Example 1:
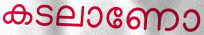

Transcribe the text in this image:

കടലാണോ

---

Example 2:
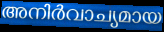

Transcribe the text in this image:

അനിർവാച്യമായ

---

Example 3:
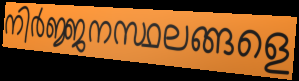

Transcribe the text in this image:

നിർജ്ജനസ്ഥലങ്ങളെ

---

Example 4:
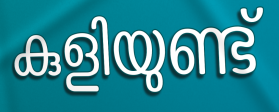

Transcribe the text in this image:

കുളിയുണ്ട്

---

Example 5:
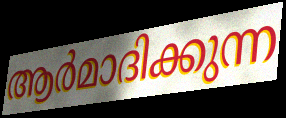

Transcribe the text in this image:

ആർമാദിക്കുന്ന